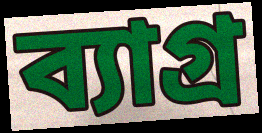
ব্যাগ্র